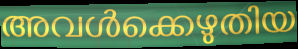
അവൾക്കെഴുതിയ